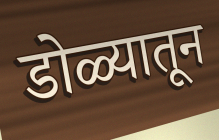
डोळ्यातून